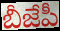
బీజేపీ